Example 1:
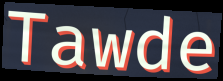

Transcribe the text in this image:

Tawde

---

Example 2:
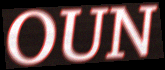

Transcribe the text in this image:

OUN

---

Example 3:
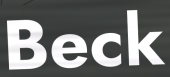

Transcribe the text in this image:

Beck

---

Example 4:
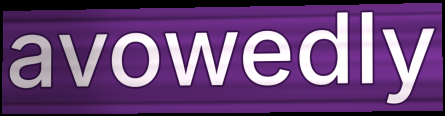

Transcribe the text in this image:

avowedly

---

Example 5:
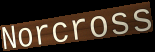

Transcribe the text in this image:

Norcross